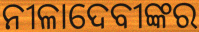
ନୀଳାଦେବୀଙ୍କର